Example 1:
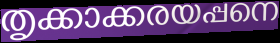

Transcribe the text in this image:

തൃക്കാക്കരയപ്പനെ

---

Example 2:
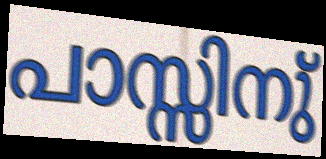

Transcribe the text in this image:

പാസ്സിനു്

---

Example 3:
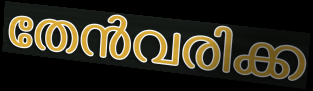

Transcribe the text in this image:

തേൻവരിക്ക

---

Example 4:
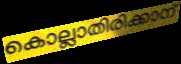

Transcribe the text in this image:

കൊല്ലാതിരിക്കാന്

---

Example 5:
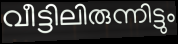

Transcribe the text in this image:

വീട്ടിലിരുന്നിട്ടും